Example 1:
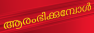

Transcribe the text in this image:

ആരംഭിക്കുമ്പോൾ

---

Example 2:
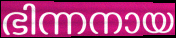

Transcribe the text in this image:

ഭിന്നനായ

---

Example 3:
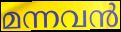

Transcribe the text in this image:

മന്നവൻ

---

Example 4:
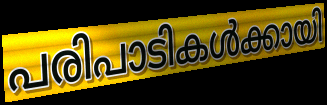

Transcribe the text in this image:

പരിപാടികൾക്കായി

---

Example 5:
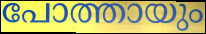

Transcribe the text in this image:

പോത്തായും